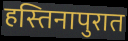
हस्तिनापुरात